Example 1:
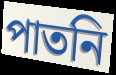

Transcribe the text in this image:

পাতনি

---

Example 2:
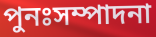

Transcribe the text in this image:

পুনঃসম্পাদনা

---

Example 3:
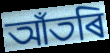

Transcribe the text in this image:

আঁতৰি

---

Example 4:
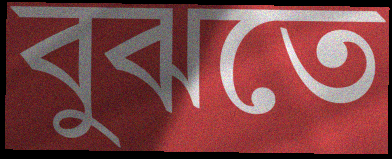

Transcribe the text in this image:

বুঝতে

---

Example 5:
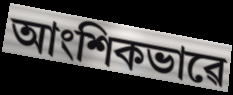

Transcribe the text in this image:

আংশিকভাৱে